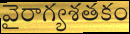
వైరాగ్యశతకం